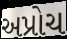
અપ્રોચ